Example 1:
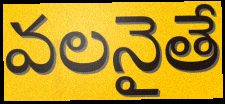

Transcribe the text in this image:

వలనైతే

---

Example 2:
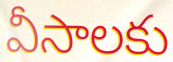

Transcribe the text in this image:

వీసాలకు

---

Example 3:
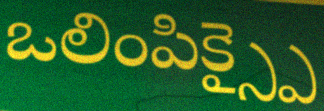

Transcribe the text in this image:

ఒలింపిక్స్పై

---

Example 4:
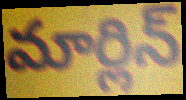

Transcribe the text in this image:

మార్లిన్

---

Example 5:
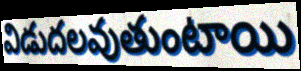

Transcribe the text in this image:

విడుదలవుతుంటాయి